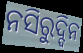
ନସିରୁଦ୍ଦିନ